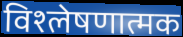
विश्लेषणात्मक